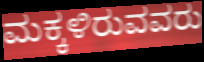
ಮಕ್ಕಳಿರುವವರು